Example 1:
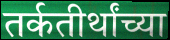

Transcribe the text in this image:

तर्कतीर्थांच्या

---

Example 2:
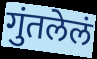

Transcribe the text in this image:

गुंतलेलं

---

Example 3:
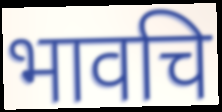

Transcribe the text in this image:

भावचि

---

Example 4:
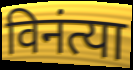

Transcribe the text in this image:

विनंत्या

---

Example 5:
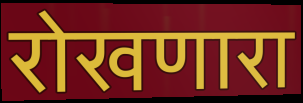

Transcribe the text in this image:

रोखणारा